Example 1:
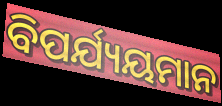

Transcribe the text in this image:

ବିପର୍ଯ୍ୟୟମାନ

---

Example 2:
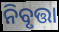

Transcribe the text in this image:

ନିବୃତ୍ତା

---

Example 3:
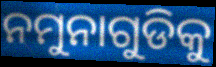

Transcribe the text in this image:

ନମୁନାଗୁଡିକୁ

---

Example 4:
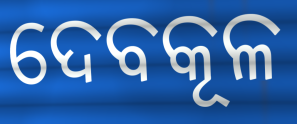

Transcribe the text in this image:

ଦେବକୂଳ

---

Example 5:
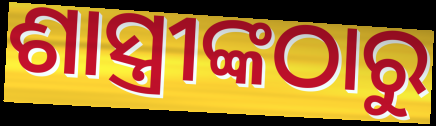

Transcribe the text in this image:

ଶାସ୍ତ୍ରୀଙ୍କଠାରୁ